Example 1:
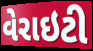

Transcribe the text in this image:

વેરાઇટી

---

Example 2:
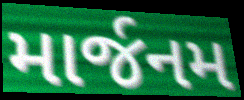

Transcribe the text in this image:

માર્જનમ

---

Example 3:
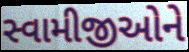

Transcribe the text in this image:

સ્વામીજીઓને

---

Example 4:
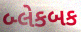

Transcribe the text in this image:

બ્લેકબક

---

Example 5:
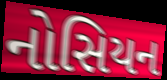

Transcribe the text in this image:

નોસિયન